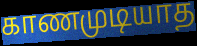
காணமுடியாத